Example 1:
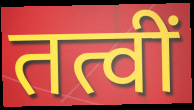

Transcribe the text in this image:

तत्वीं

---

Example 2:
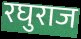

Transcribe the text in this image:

रघुराज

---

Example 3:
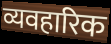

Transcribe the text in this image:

व्यवहारिक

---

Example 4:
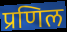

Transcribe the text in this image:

प्रणिल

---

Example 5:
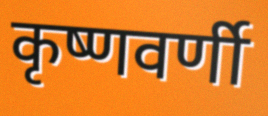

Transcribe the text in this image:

कृष्णवर्णी